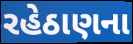
રહેઠાણના